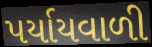
પર્યાયવાળી